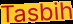
Tasbih